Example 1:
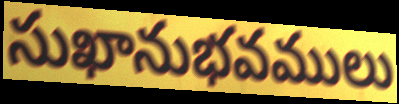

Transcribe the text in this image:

సుఖానుభవములు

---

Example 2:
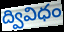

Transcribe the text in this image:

ద్వివిధం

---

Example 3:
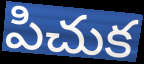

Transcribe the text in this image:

పిచుక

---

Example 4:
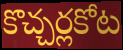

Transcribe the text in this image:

కొచ్చర్లకోట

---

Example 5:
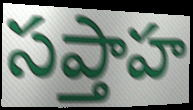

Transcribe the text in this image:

సప్తాహ